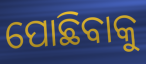
ପୋଛିବାକୁ